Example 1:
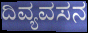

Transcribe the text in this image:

ದಿವ್ಯವಸನ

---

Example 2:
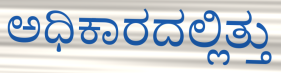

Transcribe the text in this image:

ಅಧಿಕಾರದಲ್ಲಿತ್ತು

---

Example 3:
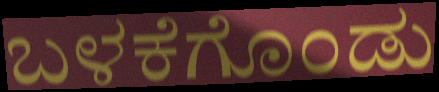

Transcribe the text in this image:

ಬಳಕೆಗೊಂಡು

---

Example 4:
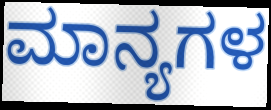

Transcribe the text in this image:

ಮಾನ್ಯಗಳ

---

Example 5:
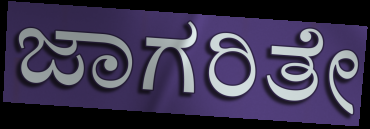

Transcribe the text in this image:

ಜಾಗರಿತೇ